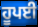
ਹੂਪਈ